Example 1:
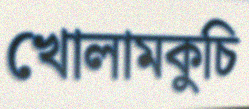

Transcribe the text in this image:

খোলামকুচি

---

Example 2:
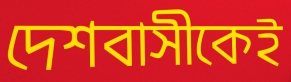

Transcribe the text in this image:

দেশবাসীকেই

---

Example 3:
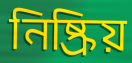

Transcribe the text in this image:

নিষ্ক্রিয়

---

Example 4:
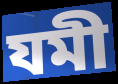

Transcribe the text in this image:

যমী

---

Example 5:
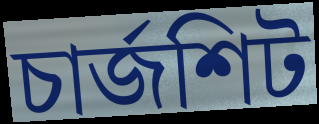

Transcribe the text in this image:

চার্জশিট